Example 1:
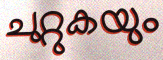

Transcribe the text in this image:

ചുറ്റുകയും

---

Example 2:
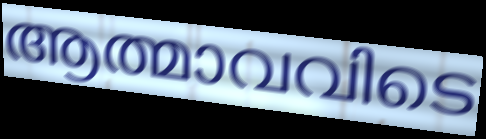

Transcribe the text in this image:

ആത്മാവവിടെ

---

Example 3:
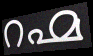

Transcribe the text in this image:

റഹ്മ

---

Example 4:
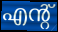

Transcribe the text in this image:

എന്റ്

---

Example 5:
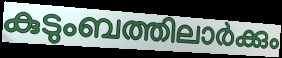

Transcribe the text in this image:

കുടുംബത്തിലാർക്കും